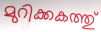
മുറിക്കകത്തു്